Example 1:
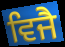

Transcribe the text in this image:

ਵਿਜੈ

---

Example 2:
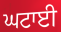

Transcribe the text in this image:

ਘਟਾਈ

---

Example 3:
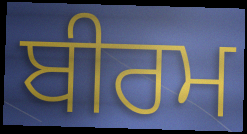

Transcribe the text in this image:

ਬੀਰਮ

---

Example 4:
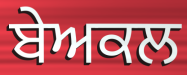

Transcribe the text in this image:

ਬੇਅਕਲ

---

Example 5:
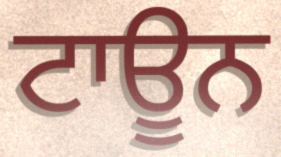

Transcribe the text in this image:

ਟਾਊਨ